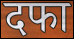
दफा